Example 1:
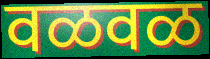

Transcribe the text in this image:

वळवळ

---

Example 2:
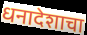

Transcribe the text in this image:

धनादेशाचा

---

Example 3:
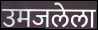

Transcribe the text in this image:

उमजलेला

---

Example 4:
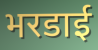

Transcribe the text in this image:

भरडाई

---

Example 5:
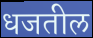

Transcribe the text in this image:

धजतील